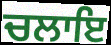
ਚਲਾਇ